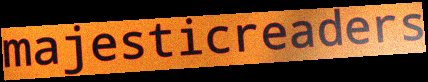
majesticreaders